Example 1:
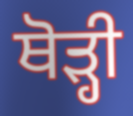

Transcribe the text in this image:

ਥੋਡ਼੍ਹੀ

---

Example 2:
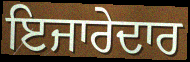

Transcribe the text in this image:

ਇਜਾਰੇਦਾਰ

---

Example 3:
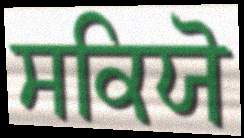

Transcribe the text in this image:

ਸਕਿਯੋ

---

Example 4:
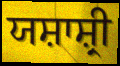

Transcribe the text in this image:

ਯਸ਼ਾਸ਼੍ਰੀ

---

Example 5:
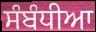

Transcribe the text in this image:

ਸੰਬੰਧੀਆ